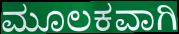
ಮೂಲಕವಾಗಿ